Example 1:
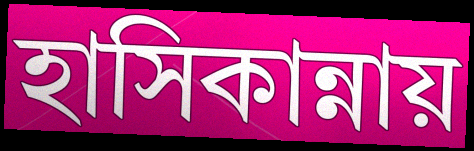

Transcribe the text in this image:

হাসিকান্নায়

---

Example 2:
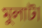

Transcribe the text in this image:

মুলাটা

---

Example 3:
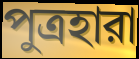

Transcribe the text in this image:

পুত্রহারা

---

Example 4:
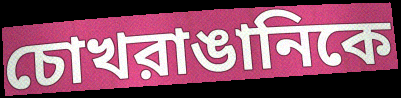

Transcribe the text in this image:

চোখরাঙানিকে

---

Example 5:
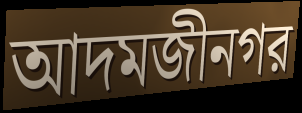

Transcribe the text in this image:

আদমজীনগর